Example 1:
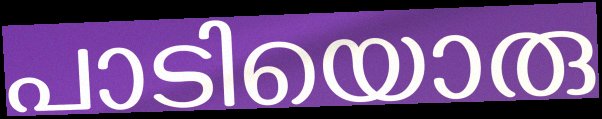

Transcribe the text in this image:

പാടിയൊരു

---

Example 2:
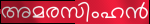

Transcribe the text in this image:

അമരസിംഹൻ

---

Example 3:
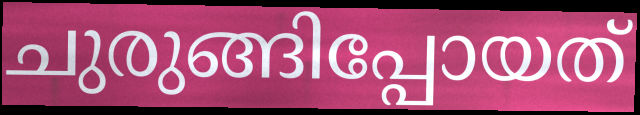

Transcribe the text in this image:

ചുരുങ്ങിപ്പോയത്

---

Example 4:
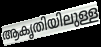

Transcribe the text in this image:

ആകൃതിയിലുള്ള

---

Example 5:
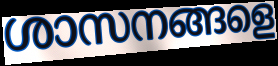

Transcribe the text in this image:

ശാസനങ്ങളെ